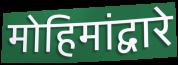
मोहिमांद्वारे